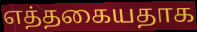
எத்தகையதாக